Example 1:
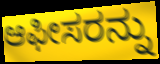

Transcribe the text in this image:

ಆಫೀಸರನ್ನು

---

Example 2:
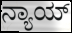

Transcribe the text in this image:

ನ್ಯಾಯ್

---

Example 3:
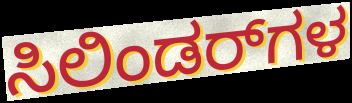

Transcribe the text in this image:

ಸಿಲಿಂಡರ್‌ಗಳ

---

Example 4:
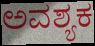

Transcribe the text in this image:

ಅವಶ್ಯಕ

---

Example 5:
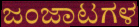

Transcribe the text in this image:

ಜಂಜಾಟಗಳ